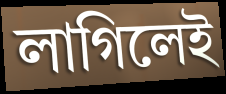
লাগিলেই